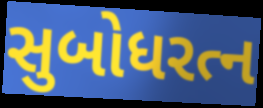
સુબોધરત્ન